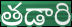
తడారి